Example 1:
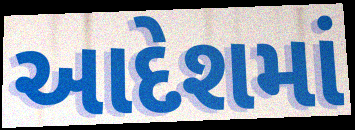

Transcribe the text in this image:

આદેશમાં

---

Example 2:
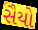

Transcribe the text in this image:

સૈયો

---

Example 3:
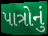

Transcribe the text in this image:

પાત્રોનું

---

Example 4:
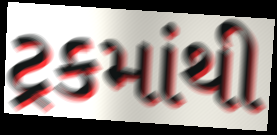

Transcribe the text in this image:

ટ્રકમાંથી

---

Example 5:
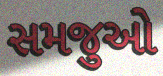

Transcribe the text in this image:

સમજુઓ